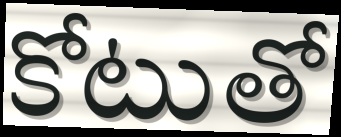
కోటుతో